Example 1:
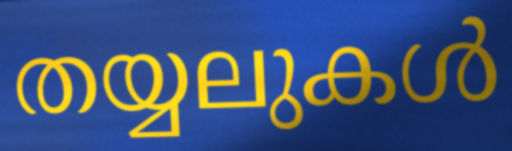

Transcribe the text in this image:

തയ്യലുകൾ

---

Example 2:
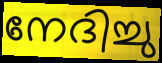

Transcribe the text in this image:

നേദിച്ചു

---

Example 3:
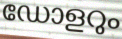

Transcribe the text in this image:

ഡോളറും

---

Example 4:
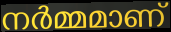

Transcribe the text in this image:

നർമ്മമാണ്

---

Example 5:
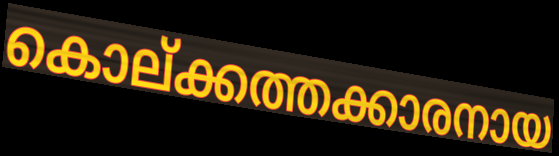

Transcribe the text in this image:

കൊല്ക്കത്തക്കാരനായ